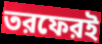
তরফেরই